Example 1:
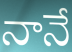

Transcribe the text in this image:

నానే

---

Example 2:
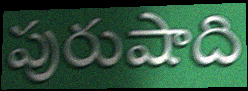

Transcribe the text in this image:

పురుషాది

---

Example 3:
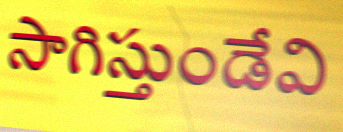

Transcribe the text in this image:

సాగిస్తుండేవి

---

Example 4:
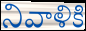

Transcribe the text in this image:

నివాళికి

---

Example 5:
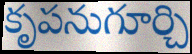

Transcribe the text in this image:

కృపనుగూర్చి